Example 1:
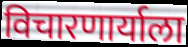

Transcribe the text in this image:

विचारणार्याला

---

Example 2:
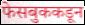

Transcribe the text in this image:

फेसबुककडून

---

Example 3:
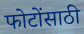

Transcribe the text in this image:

फोटोंसाठी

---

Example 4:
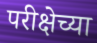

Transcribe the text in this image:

परीक्षेच्या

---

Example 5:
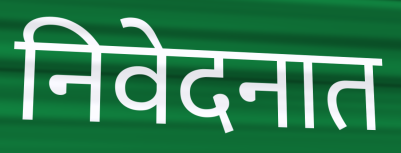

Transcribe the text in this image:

निवेदनात